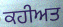
ਕਹੀਅਤ